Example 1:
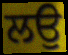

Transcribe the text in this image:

ਲਉ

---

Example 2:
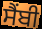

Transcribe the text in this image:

ਸੈਂਬੀ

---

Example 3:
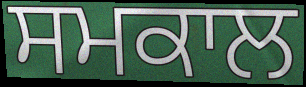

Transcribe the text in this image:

ਸਮਕਾਲ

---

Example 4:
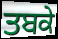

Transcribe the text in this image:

ਤਬਕੇ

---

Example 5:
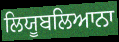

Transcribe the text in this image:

ਲਿਯੂਬਲਿਆਨਾ